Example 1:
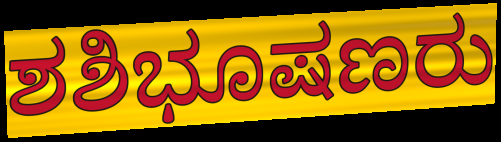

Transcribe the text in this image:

ಶಶಿಭೂಷಣರು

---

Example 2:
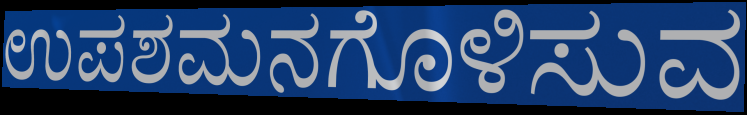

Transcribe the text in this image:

ಉಪಶಮನಗೊಳಿಸುವ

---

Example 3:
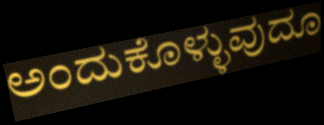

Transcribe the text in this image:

ಅಂದುಕೊಳ್ಳುವುದೂ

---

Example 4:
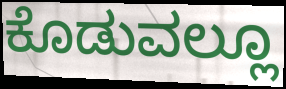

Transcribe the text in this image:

ಕೊಡುವಲ್ಲೂ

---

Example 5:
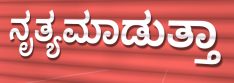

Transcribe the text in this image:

ನೃತ್ಯಮಾಡುತ್ತಾ